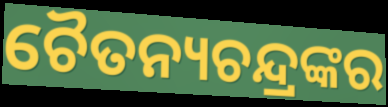
ଚୈତନ୍ୟଚନ୍ଦ୍ରଙ୍କର